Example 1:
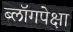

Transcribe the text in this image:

ब्लॉगपेक्षा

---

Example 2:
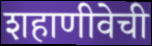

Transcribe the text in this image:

शहाणीवेची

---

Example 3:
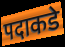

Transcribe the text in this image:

पदाकडे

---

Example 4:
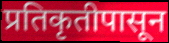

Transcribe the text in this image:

प्रतिकृतीपासून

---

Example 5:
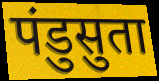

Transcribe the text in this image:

पंडुसुता